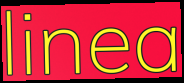
linea